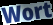
Wort